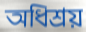
অধিশ্রয়